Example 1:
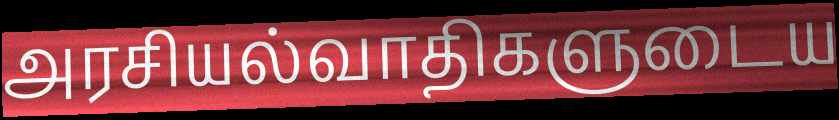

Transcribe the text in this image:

அரசியல்வாதிகளுடைய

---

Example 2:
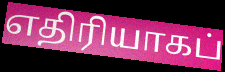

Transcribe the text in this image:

எதிரியாகப்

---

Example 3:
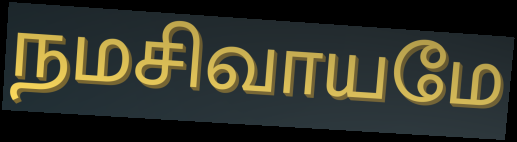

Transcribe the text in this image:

நமசிவாயமே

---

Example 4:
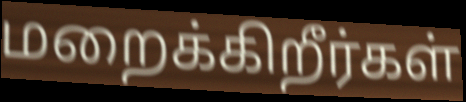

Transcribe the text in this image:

மறைக்கிறீர்கள்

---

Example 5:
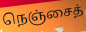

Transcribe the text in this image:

நெஞ்சைத்